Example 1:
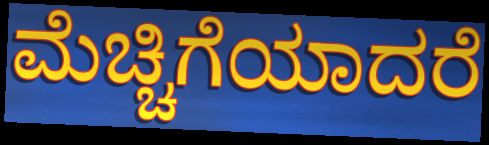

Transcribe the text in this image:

ಮೆಚ್ಚಿಗೆಯಾದರೆ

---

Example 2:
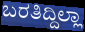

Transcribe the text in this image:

ಬರತಿದ್ದಿಲ್ಲಾ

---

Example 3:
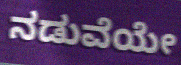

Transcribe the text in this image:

ನಡುವೆಯೇ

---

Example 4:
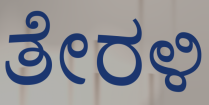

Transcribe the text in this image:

ತೇರಳಿ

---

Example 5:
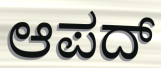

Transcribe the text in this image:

ಆಪದ್